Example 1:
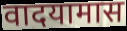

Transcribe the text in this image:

वादयामास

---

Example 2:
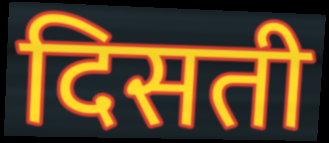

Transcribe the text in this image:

दिसती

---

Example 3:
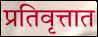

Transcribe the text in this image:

प्रतिवृत्तात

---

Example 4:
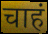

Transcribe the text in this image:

चाहं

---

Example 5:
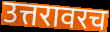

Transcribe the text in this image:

उत्तरावरच